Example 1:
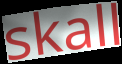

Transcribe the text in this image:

skall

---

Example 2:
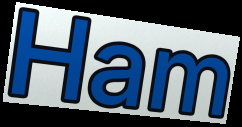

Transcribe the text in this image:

Ham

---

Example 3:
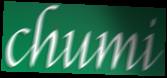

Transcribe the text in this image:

chumi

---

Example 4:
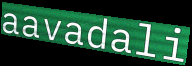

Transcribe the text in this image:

aavadali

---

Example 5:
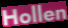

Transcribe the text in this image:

Hollen